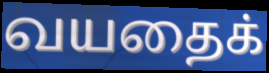
வயதைக்